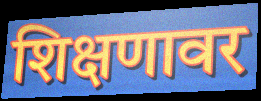
शिक्षणावर